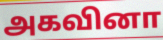
அகவினா